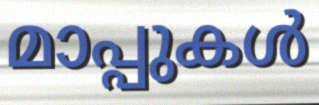
മാപ്പുകൾ